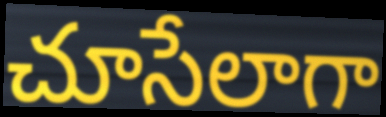
చూసేలాగా